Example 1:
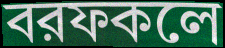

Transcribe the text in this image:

বরফকলে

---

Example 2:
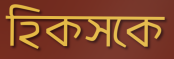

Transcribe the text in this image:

হিকসকে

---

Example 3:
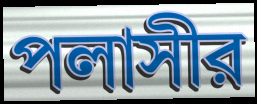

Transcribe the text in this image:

পলাসীর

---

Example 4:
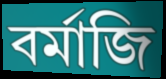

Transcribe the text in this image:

বর্মাজি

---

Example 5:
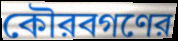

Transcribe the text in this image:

কৌরবগণের